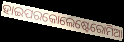
ହାଇପରକୋଲେଷ୍ଟେରୋମିଆ